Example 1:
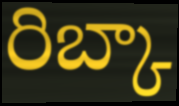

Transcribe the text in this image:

రిబ్కా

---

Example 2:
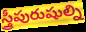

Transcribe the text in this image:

స్త్రీపురుషుల్ని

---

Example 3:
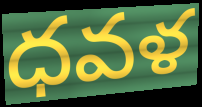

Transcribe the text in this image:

ధవళ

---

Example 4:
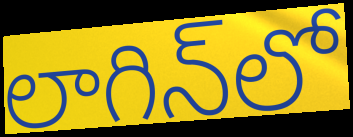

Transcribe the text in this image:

లాగిన్‌లో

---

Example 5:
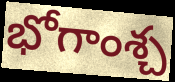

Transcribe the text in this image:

భోగాంశ్చ